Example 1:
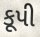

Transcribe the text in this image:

કૂપી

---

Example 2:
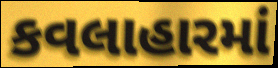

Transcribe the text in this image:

કવલાહારમાં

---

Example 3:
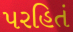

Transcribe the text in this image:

પરહિતં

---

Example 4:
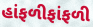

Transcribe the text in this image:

હાંફળીફાંફળી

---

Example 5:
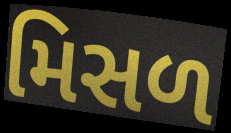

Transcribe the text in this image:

મિસળ